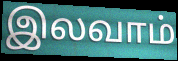
இலவாம்